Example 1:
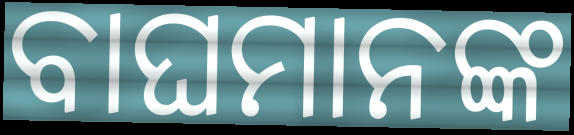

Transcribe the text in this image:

ବାଘମାନଙ୍କ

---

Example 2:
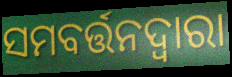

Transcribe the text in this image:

ସମବର୍ତ୍ତନଦ୍ୱାରା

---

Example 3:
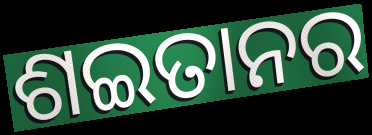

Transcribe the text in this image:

ଶଇତାନର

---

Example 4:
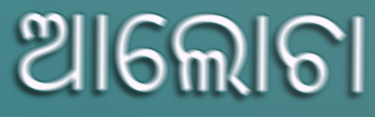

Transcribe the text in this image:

ଆଲୋଚା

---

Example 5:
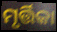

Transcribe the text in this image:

ମୃର୍ତ୍ତିକା